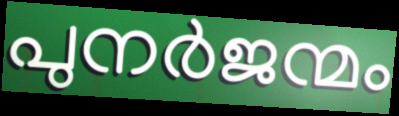
പുനർജന്മം